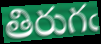
తిరుగఁ